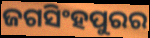
ଜଗସିଂହପୁରର